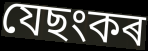
যেছংকৰ